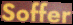
Soffer